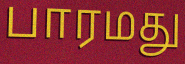
பாரமது